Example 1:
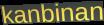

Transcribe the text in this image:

kanbinan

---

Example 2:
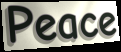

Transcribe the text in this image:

Peace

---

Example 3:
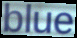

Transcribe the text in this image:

blue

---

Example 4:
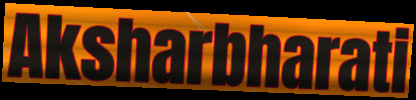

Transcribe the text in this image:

Aksharbharati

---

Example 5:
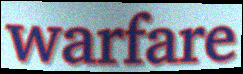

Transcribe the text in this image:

warfare